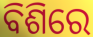
ବିଶିରେ